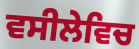
ਵਸੀਲੇਵਿਚ